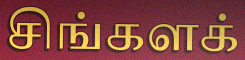
சிங்களக்